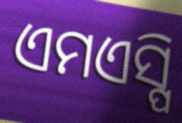
ଏମଏସ୍ପି